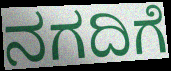
ನಗದಿಗೆ